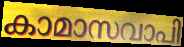
കാമാസവാപി